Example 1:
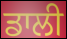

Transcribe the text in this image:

ਡਾਲੀ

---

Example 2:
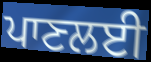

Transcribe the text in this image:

ਪਾਣਲਈ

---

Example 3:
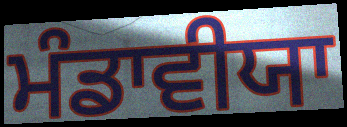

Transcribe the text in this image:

ਮੰਡਾਵੀਯਾ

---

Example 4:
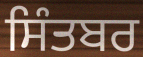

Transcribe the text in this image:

ਸਿੰਤਬਰ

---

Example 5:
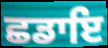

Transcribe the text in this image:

ਛਡਾਇ